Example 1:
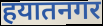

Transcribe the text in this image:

हयातनगर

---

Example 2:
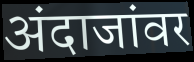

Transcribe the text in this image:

अंदाजांवर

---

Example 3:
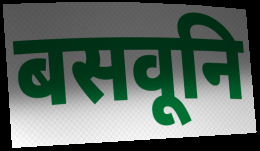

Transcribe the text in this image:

बसवूनि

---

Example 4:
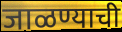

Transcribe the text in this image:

जाळण्याची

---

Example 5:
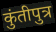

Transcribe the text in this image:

कुंतीपुत्र